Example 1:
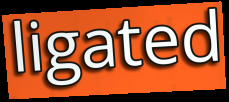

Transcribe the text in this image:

ligated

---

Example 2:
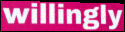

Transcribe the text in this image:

willingly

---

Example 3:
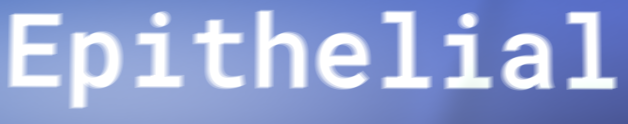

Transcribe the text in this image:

Epithelial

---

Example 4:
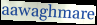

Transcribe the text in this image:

aawaghmare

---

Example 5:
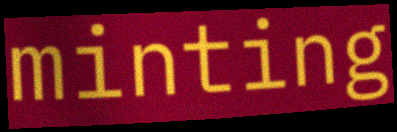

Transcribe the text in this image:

minting